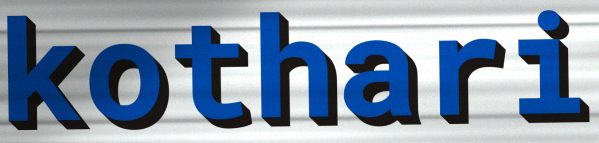
kothari